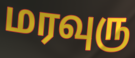
மரவுரு